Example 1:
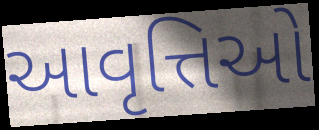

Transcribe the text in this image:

આવૃત્તિઓ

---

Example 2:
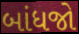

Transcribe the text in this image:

બાંધજો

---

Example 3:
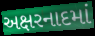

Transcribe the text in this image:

અક્ષરનાદમાં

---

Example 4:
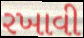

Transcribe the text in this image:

રખાવી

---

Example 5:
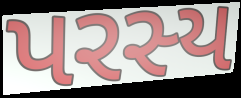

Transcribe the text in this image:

પરસ્ય